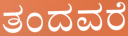
ತಂದವರೆ